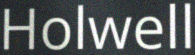
Holwell